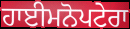
ਹਾਈਮਨੋਪਟੇਰਾ